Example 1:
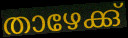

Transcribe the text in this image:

താഴേക്കു്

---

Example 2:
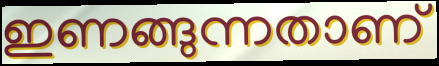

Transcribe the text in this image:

ഇണങ്ങുന്നതാണ്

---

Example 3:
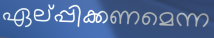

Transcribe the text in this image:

ഏല്പ്പിക്കണമെന്ന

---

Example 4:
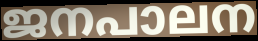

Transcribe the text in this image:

ജനപാലന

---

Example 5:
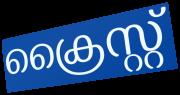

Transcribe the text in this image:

ക്രൈസ്റ്റ്